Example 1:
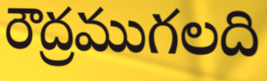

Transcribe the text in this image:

రౌద్రముగలది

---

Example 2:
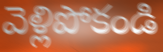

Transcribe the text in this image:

వెళ్లిపోకండి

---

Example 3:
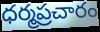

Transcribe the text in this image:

ధర్మప్రచారం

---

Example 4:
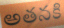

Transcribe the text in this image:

అతనకి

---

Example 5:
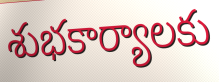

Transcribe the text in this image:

శుభకార్యాలకు